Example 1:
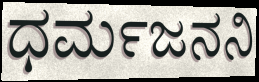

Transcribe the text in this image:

ಧರ್ಮಜನನಿ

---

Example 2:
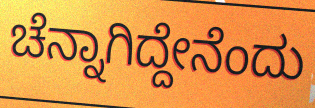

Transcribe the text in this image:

ಚೆನ್ನಾಗಿದ್ದೇನೆಂದು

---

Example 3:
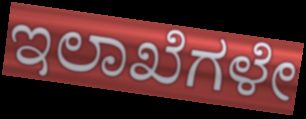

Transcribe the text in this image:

ಇಲಾಖೆಗಳೇ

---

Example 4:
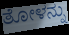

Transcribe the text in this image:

ತೋಳನ್ನು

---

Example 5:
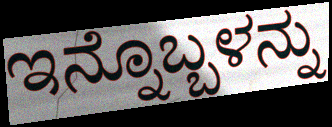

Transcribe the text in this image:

ಇನ್ನೊಬ್ಬಳನ್ನು